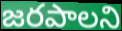
జరపాలని